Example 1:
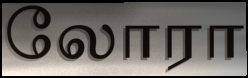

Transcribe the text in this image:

லோரா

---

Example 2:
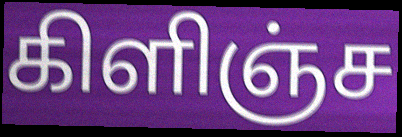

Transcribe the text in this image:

கிளிஞ்ச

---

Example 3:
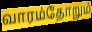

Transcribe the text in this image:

வாரம்தோறும்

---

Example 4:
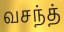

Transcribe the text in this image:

வசந்த்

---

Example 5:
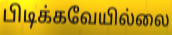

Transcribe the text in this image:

பிடிக்கவேயில்லை